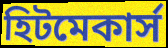
হিটমেকার্স